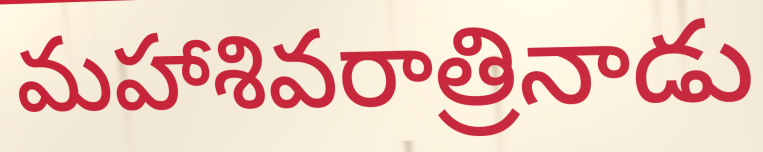
మహాశివరాత్రినాడు